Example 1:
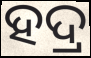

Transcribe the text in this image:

ହଦ୍ର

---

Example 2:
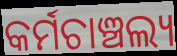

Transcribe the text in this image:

କର୍ମଚାଞ୍ଚଲ୍ୟ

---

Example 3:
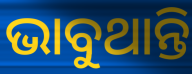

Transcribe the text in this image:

ଭାବୁଥାନ୍ତି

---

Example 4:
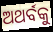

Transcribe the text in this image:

ଅଥର୍ବକୁ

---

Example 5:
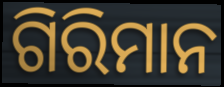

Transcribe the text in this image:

ଗିରିମାନ